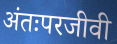
अंतःपरजीवी